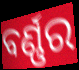
ବର୍ଣ୍ଣର